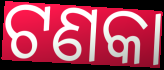
ଟଣକା